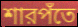
শারপঁতে